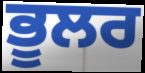
ਭੂਲਰ